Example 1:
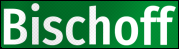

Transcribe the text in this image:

Bischoff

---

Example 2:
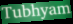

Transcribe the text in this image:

Tubhyam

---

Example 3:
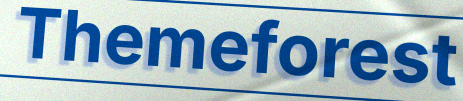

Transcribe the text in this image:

Themeforest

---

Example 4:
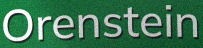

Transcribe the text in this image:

Orenstein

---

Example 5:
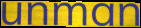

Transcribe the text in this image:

unman